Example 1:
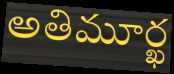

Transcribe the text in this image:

అతిమూర్ఖ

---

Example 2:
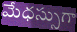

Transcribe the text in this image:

మేధస్సుగా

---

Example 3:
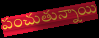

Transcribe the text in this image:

పంచుతున్నాయి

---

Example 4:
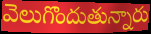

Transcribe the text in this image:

వెలుగొందుతున్నారు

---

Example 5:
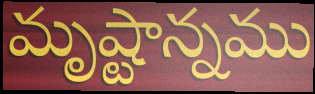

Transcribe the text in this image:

మృష్టాన్నము